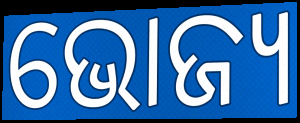
ଭୋଜ୍ୟ